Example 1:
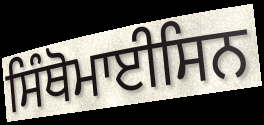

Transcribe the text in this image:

ਸਿੰਥੋਮਾਈਸਿਨ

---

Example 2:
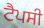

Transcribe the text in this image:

ਟੈਪਸੀ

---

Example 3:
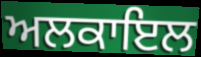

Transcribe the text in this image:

ਅਲਕਾਇਲ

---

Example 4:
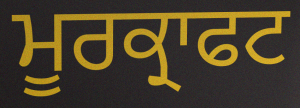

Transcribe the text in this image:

ਮੂਰਕ੍ਰਾਫਟ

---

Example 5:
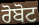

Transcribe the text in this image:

ਰੋਬੋਟ